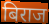
बिराज